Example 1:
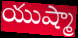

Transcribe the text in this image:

యుష్మా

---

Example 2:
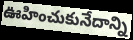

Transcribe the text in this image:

ఊహించుకునేదాన్ని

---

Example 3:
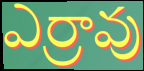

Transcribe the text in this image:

ఎర్రావు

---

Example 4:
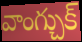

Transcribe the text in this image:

వాంగ్చుక్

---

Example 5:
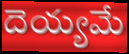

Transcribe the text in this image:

దెయ్యమే